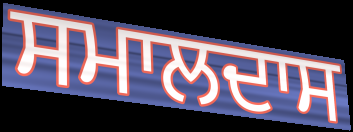
ਸਮਾਲਦਾਸ